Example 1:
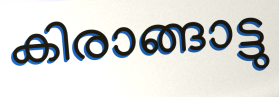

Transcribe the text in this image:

കിരാങ്ങാട്ടു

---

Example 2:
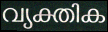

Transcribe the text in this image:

വ്യക്തിക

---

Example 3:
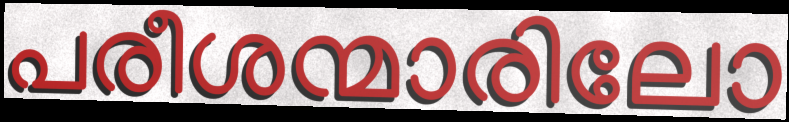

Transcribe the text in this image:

പരീശന്മാരിലോ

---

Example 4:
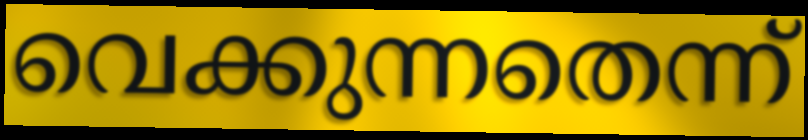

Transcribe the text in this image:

വെക്കുന്നതെന്ന്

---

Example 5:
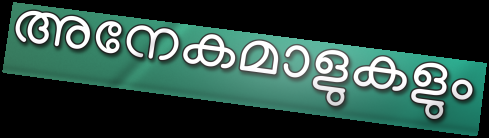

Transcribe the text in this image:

അനേകമാളുകളും